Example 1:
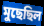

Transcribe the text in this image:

মুছেছিল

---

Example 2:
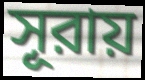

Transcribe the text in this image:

সূরায়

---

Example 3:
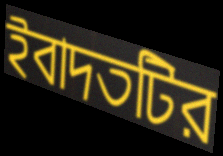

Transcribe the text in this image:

ইবাদতটির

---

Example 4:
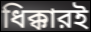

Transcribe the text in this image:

ধিক্কারই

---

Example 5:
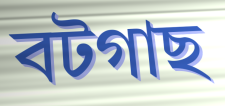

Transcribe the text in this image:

বটগাছ